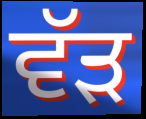
ਵੱੜ